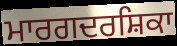
ਮਾਰਗਦਰਸ਼ਿਕਾ